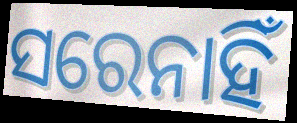
ସରେନାହିଁ